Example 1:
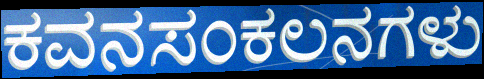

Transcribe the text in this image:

ಕವನಸಂಕಲನಗಳು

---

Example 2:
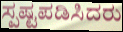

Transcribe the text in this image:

ಸ್ಪಷ್ಟಪಡಿಸಿದರು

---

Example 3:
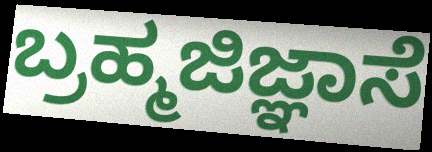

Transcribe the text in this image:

ಬ್ರಹ್ಮಜಿಜ್ಞಾಸೆ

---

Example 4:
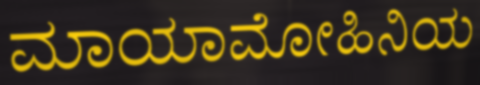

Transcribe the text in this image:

ಮಾಯಾಮೋಹಿನಿಯ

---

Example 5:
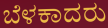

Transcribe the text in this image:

ಬೆಳಕಾದರು